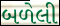
બળેલી